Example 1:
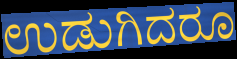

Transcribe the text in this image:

ಉಡುಗಿದರೂ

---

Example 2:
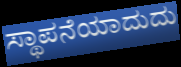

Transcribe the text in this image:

ಸ್ಥಾಪನೆಯಾದುದು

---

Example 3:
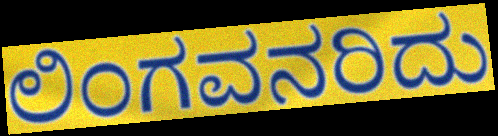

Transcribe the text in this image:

ಲಿಂಗವನರಿದು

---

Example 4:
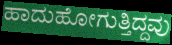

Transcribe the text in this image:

ಹಾದುಹೋಗುತ್ತಿದ್ದವು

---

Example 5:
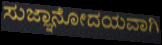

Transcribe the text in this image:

ಸುಜ್ಞಾನೋದಯವಾಗಿ